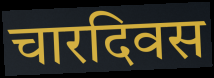
चारदिवस